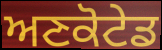
ਅਣਕੋਟੇਡ